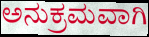
ಅನುಕ್ರಮವಾಗಿ